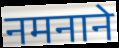
नमनाने